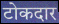
टोकदार